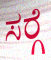
ಸರ್‍ಗೆ